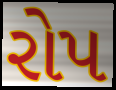
રોપ